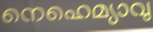
നെഹെമ്യാവു